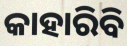
କାହାରିବି